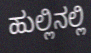
ಹುಲ್ಲಿನಲ್ಲಿ